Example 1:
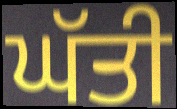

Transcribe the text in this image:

ਘੱਤੀ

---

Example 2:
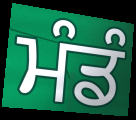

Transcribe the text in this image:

ਮੰਡੰ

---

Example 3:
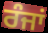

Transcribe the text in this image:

ਰੰਜਾਂ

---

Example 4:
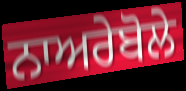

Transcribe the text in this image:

ਨਾਅਰੇਬੋਲੇ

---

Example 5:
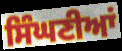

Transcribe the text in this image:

ਸਿੰਘਣੀਆਂ